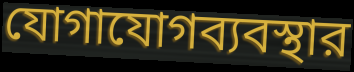
যোগাযোগব্যবস্থার